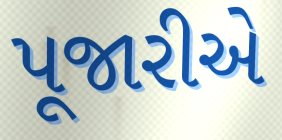
પૂજારીએ